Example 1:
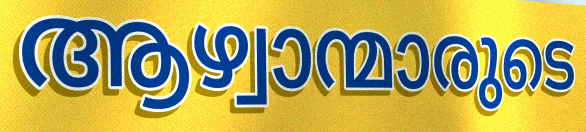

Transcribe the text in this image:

ആഴ്വാന്മാരുടെ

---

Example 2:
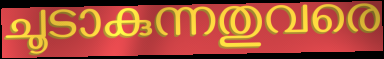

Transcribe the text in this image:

ചൂടാകുന്നതുവരെ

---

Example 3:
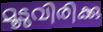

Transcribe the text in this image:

മൂടുവിരിക്കു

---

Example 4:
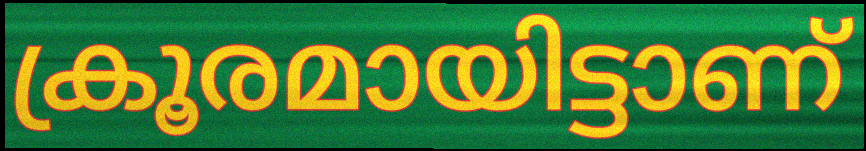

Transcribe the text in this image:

ക്രൂരമായിട്ടാണ്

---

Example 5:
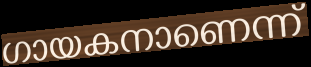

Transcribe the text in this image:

ഗായകനാണെന്ന്